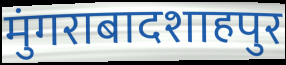
मुंगराबादशाहपुर